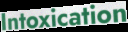
Intoxication